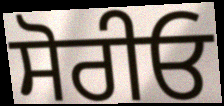
ਸੋਰੀਓ